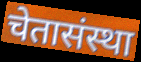
चेतासंस्था